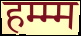
हम्म्म